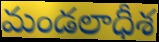
మండలాధీశ